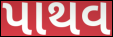
પાથવ